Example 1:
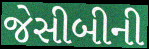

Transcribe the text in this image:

જેસીબીની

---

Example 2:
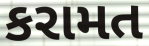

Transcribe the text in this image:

કરામત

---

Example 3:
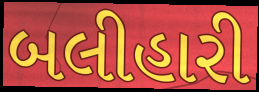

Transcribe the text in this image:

બલીહારી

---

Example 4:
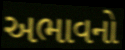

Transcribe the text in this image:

અભાવનો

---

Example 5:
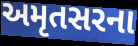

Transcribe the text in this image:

અમૃતસરના